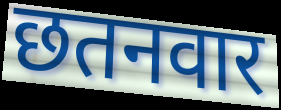
छतनवार